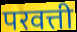
परवत्ती